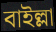
বাইল্লা